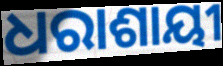
ଧରାଶାୟୀ